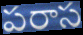
పరాస